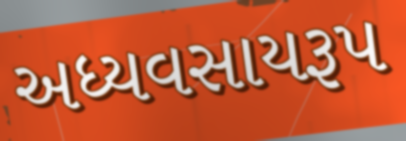
અધ્યવસાયરૂપ